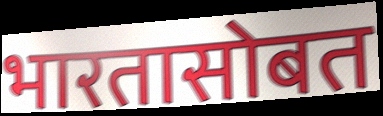
भारतासोबत